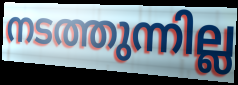
നടത്തുന്നില്ല